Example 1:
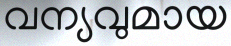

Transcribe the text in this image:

വന്യവുമായ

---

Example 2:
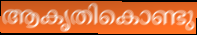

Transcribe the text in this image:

ആകൃതികൊണ്ടു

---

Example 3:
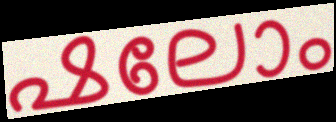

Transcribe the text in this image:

ഷലോം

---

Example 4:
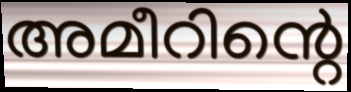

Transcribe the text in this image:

അമീറിന്റെ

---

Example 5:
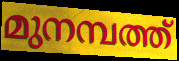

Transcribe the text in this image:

മുനമ്പത്ത്